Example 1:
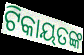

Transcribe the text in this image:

ଟିକାୟତଙ୍କ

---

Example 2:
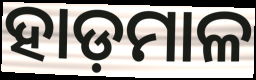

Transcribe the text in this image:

ହାଡ଼ମାଳ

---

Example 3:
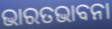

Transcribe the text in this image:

ଭାରତଭାବନା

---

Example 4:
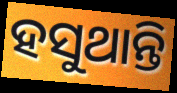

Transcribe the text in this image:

ହସୁଥାନ୍ତି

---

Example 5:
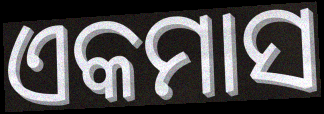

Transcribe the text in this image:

ଏକମାସ